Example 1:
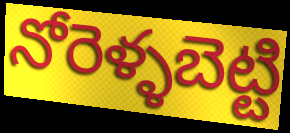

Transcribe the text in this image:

నోరెళ్ళబెట్టి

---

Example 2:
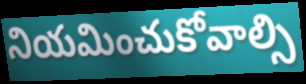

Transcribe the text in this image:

నియమించుకోవాల్సి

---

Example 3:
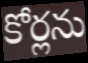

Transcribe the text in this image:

కోర్లను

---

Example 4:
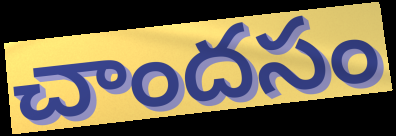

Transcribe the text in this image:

చాందసం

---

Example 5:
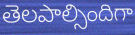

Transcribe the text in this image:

తెలపాల్సిందిగా